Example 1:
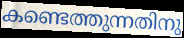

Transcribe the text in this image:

കണ്ടെത്തുന്നതിനു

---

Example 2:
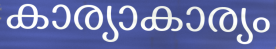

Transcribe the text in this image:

കാര്യാകാര്യം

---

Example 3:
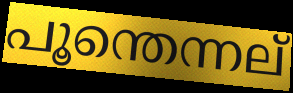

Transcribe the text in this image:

പൂന്തെന്നല്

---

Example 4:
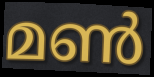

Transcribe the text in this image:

മൺ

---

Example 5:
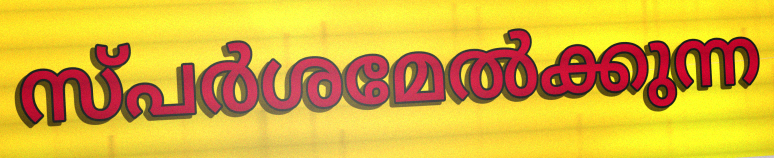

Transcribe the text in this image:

സ്പർശമേൽക്കുന്ന